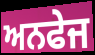
ਅਨਫੇਜ